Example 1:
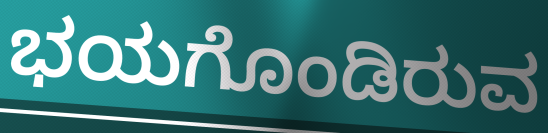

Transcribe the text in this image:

ಭಯಗೊಂಡಿರುವ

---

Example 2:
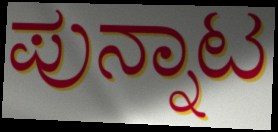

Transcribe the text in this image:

ಪುನ್ನಾಟ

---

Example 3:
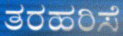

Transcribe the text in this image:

ತರಹರಿಸೆ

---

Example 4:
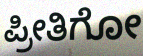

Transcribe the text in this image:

ಪ್ರೀತಿಗೋ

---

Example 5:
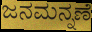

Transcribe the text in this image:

ಜನಮನ್ನಣೆ